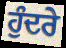
ਹੁੰਦਰੇ